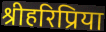
श्रीहरिप्रिया